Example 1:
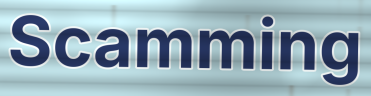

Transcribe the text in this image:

Scamming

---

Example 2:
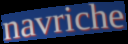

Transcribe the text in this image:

navriche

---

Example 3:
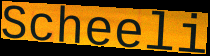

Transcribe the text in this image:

Scheeli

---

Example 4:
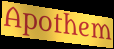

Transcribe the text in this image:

Apothem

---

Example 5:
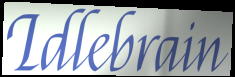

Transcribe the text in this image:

Idlebrain